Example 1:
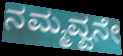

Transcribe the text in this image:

ನಮ್ಮವ್ವನೇ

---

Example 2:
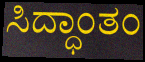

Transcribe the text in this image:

ಸಿದ್ಧಾಂತಂ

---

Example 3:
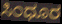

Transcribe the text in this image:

ಸಿಂಧೂರ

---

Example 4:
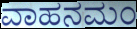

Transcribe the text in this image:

ವಾಹನಮಂ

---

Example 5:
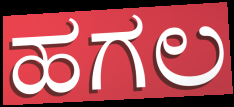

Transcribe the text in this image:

ಹಗಲ